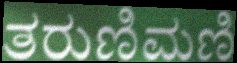
ತರುಣಿಮಣಿ